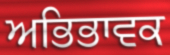
ਅਭਿਭਾਵਕ